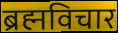
ब्रह्मविचार